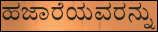
ಹಜಾರೆಯವರನ್ನು